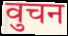
वुचन